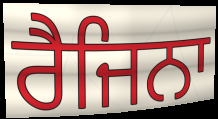
ਰੈਜਿਨਾ